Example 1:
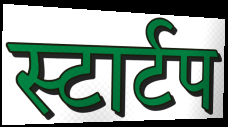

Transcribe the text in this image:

स्टार्टप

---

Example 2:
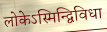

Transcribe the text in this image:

लोकेऽस्मिन्द्विविधा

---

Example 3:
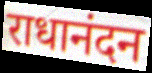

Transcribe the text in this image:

राधानंदन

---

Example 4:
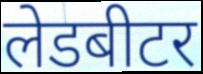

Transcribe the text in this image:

लेडबीटर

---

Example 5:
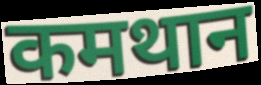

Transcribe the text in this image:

कमथान